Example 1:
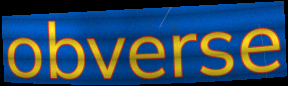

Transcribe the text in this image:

obverse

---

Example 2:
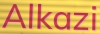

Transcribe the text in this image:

Alkazi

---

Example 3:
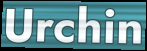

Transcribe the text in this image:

Urchin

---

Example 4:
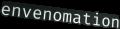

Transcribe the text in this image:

envenomation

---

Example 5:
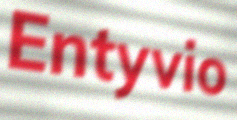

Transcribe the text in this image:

Entyvio